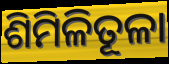
ଶିମିଳିତୂଳା